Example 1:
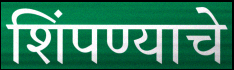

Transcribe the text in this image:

शिंपण्याचे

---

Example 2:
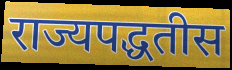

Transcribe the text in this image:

राज्यपद्धतीस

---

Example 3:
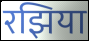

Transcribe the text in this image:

रझिया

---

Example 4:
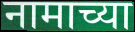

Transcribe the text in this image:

नामाच्या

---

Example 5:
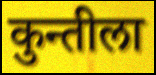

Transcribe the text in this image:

कुन्तीला